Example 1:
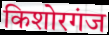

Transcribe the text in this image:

किशोरगंज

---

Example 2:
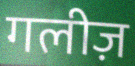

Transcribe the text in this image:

गलीज़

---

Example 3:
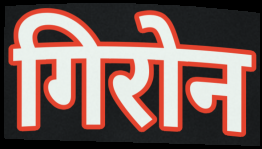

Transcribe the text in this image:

गिरोन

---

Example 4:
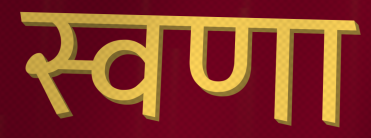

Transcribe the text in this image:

स्वणा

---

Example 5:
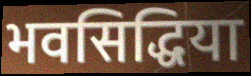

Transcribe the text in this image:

भवसिद्धिया